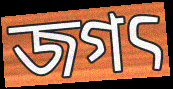
জগৎ